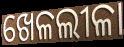
ଖେଳଲୀଳା